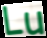
Lu